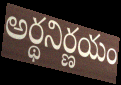
అర్థనిర్ణయం